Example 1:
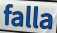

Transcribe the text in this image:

falla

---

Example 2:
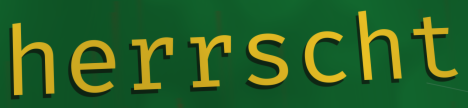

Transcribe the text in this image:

herrscht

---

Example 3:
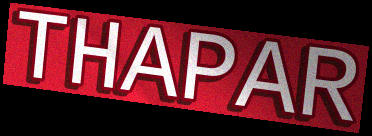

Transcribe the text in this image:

THAPAR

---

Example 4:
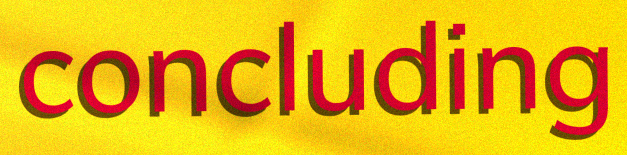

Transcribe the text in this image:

concluding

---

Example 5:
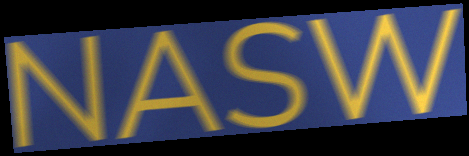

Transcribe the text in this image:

NASW